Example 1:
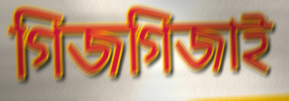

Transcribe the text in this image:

গিজগিজাই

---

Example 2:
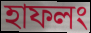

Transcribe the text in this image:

হাফলং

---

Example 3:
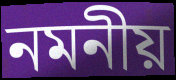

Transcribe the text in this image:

নমনীয়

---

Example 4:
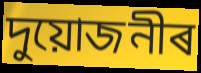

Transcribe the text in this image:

দুয়োজনীৰ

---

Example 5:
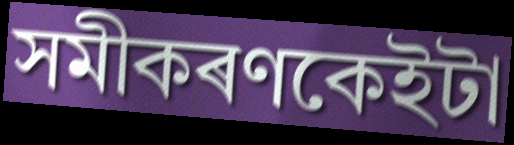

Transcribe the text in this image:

সমীকৰণকেইটা